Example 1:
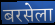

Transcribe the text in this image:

बरसेला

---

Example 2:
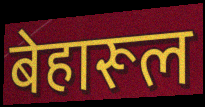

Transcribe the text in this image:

बेहारूल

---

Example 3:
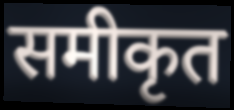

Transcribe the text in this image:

समीकृत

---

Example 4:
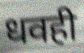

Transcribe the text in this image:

धवही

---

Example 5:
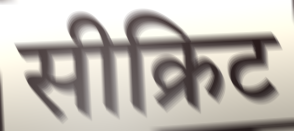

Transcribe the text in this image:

सीक्रिट